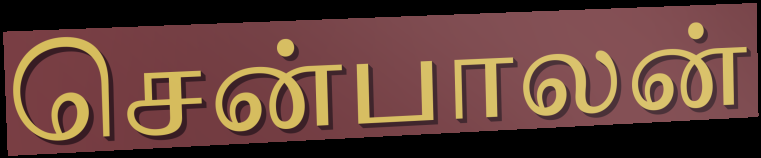
சென்பாலன்